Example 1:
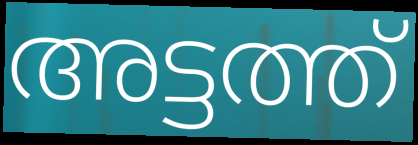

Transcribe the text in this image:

അട്ടത്ത്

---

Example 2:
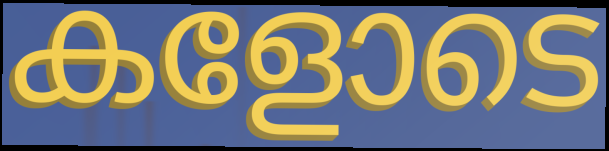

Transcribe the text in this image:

കളോടെ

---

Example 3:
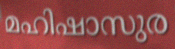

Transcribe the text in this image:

മഹിഷാസുര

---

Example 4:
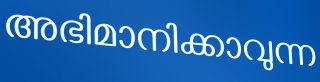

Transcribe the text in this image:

അഭിമാനിക്കാവുന്ന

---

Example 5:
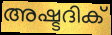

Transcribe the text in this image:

അഷ്ടദിക്